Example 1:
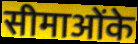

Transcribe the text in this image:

सीमाओंके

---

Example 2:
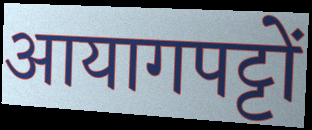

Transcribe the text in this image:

आयागपट्टों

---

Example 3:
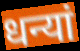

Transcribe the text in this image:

धन्यां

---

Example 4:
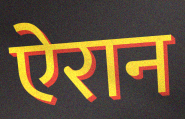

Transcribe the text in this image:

ऐरान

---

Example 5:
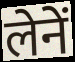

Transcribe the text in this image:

लेनें